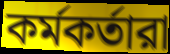
কর্মকর্তারা